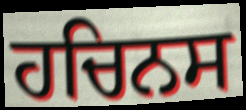
ਹਚਿਨਸ